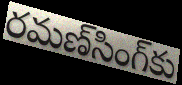
రమణ్‌సింగ్‌కు